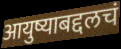
आयुष्याबद्दलचं